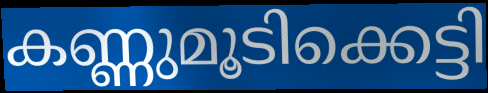
കണ്ണുമൂടിക്കെട്ടി